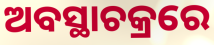
ଅବସ୍ଥାଚକ୍ରରେ